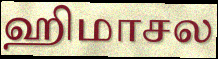
ஹிமாசல